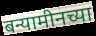
बन्यामीनच्या